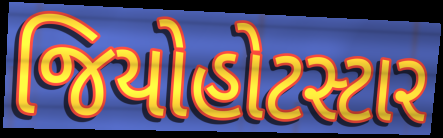
જિયોહોટસ્ટાર